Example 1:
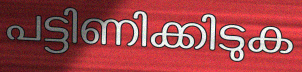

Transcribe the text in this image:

പട്ടിണിക്കിടുക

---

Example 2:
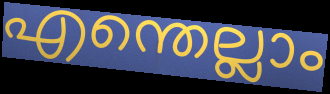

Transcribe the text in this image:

എന്തെല്ലാം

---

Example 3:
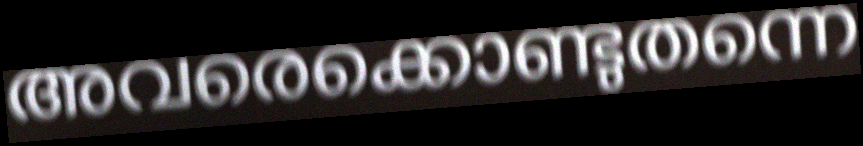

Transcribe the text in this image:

അവരെക്കൊണ്ടുതന്നെ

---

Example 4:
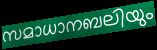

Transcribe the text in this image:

സമാധാനബലിയും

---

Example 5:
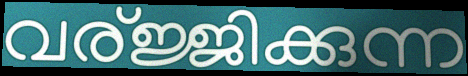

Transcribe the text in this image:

വര്ജ്ജിക്കുന്ന